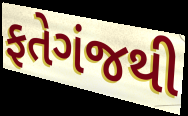
ફતેગંજથી